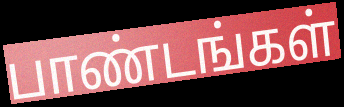
பாண்டங்கள்